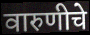
वारुणीचे